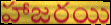
హాజరయి